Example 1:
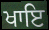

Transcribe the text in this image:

ਖਾਇ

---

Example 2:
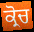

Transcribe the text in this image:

ਕ੍ਰੋਚ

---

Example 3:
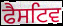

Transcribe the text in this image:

ਫੈਸਟਿਵ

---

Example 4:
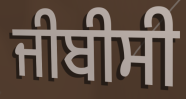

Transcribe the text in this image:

ਜੀਬੀਸੀ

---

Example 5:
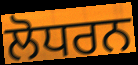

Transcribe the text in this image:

ਲੋਧਰਨ